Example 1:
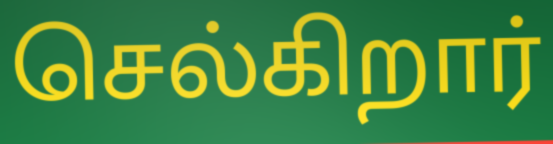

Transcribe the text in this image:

செல்கிறார்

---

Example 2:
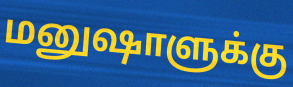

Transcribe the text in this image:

மனுஷாளுக்கு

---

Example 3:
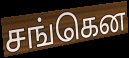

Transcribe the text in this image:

சங்கென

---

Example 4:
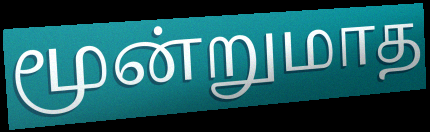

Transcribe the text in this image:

மூன்றுமாத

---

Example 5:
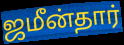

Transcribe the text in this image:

ஜமீன்தார்